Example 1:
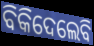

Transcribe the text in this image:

ବିକିଦେଲେବି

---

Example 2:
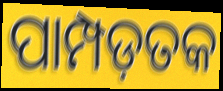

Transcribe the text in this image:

ପାମ୍ପଡ଼ତକ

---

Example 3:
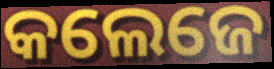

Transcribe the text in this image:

କଲେଜେ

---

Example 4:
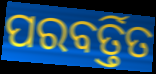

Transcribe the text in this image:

ପରବର୍ତ୍ତିତ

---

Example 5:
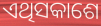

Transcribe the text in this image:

ଏଥିସକାଶେ